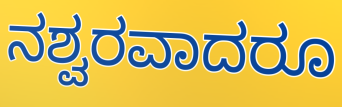
ನಶ್ವರವಾದರೂ